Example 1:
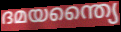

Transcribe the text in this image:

ദമയന്ത്യൈ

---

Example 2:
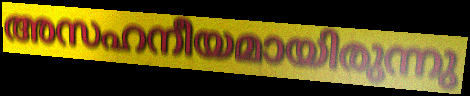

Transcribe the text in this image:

അസഹനീയമായിരുന്നു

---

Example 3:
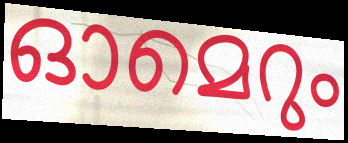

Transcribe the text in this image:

ഓമെറും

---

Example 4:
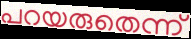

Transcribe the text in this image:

പറയരുതെന്ന്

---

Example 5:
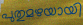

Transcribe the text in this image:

പുതുമഴയായി